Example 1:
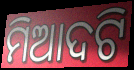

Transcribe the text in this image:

ମିଆଦଟି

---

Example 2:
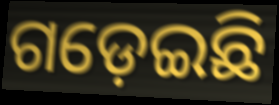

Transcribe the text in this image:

ଗଡ଼େଇଛି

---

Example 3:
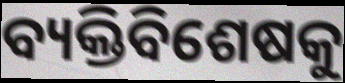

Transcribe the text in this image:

ବ୍ୟକ୍ତିବିଶେଷକୁ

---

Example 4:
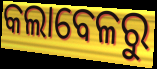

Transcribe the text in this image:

କଲାବେଳରୁ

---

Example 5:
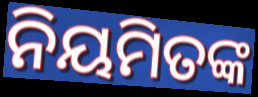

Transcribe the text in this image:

ନିୟମିତଙ୍କ